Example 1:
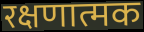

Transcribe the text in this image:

रक्षणात्मक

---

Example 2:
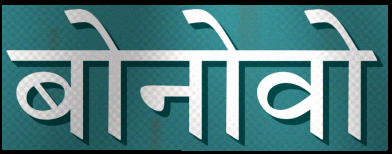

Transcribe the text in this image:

बोनोवो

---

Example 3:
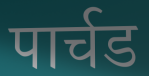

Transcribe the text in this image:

पार्चड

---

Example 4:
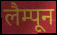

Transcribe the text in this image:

लैम्पून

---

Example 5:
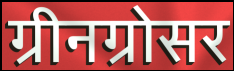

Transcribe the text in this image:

ग्रीनग्रोसर